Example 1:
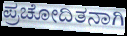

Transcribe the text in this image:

ಪ್ರಚೋದಿತನಾಗಿ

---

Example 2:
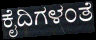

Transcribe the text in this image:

ಕೈದಿಗಳಂತೆ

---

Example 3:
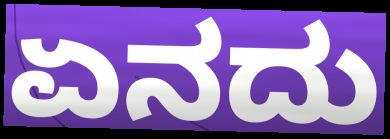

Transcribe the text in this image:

ಏನದು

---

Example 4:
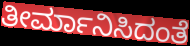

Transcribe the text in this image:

ತೀರ್ಮಾನಿಸಿದಂತೆ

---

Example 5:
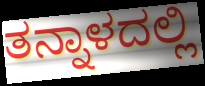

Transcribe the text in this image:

ತನ್ನಾಳದಲ್ಲಿ